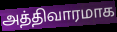
அத்திவாரமாக